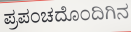
ಪ್ರಪಂಚದೊಂದಿಗಿನ